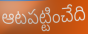
ఆటపట్టించేది